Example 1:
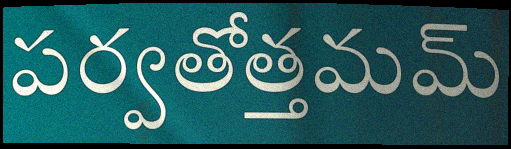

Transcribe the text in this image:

పర్వతోత్తమమ్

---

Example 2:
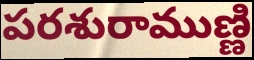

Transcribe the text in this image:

పరశురాముణ్ణి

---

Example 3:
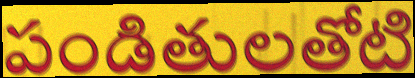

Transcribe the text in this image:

పండితులతోటి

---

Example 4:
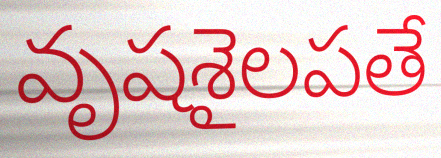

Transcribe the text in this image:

వృషశైలపతే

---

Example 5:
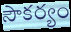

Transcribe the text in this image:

సౌకర్యం